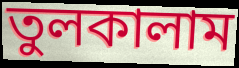
তুলকালাম